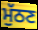
ਮੁੱਠਣ